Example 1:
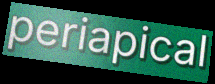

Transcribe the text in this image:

periapical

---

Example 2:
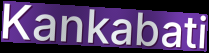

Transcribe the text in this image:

Kankabati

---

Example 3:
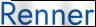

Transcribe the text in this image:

Renner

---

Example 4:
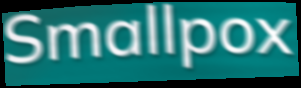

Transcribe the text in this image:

Smallpox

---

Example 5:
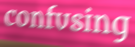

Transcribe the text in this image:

confusing